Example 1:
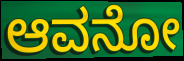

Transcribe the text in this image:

ಆವನೋ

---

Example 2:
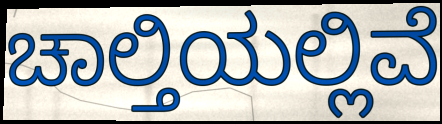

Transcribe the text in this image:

ಚಾಲ್ತಿಯಲ್ಲಿವೆ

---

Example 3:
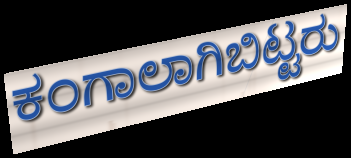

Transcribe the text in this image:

ಕಂಗಾಲಾಗಿಬಿಟ್ಟರು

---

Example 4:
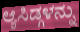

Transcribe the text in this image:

ಆ್ಯಸಿಡ್ಗಳನ್ನು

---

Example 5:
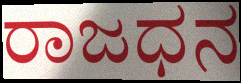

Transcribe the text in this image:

ರಾಜಧನ